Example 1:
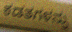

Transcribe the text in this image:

ಕಡತಗಳನ್ನು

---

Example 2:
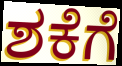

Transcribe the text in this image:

ಶಕೆಗೆ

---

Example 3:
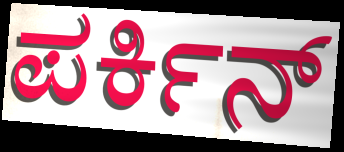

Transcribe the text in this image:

ಪರ್ಕಿನ್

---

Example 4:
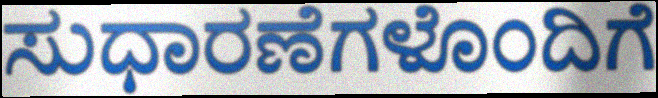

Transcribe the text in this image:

ಸುಧಾರಣೆಗಳೊಂದಿಗೆ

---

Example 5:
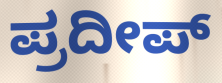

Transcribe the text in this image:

ಪ್ರದೀಪ್